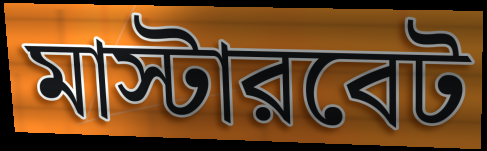
মাস্টারবেট